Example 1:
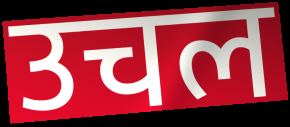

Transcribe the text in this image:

उचल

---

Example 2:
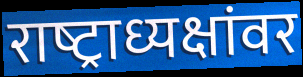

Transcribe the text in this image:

राष्ट्राध्यक्षांवर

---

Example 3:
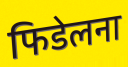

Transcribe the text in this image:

फिडेलना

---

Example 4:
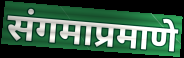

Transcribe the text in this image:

संगमाप्रमाणे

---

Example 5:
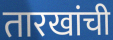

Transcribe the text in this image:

तारखांची